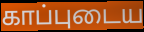
காப்புடைய